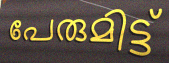
പേരുമിട്ട്